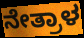
ನೇತ್ರಾಳ